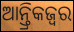
ଆନ୍ତ୍ରିକଜ୍ଵର